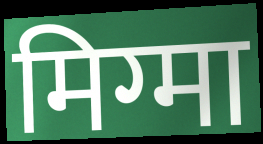
मिग्मा